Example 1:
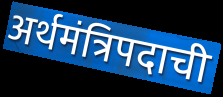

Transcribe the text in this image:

अर्थमंत्रिपदाची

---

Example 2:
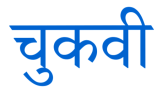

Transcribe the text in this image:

चुकवी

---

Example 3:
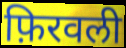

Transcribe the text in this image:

फ़िरवली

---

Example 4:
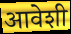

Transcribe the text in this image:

आवेशी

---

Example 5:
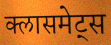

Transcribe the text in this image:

क्लासमेट्स